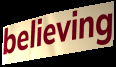
believing